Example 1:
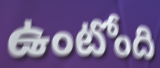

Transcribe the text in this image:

ఉంటోంది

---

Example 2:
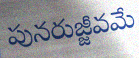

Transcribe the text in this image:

పునరుజ్జీవమే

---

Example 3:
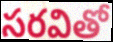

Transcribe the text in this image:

సరవితో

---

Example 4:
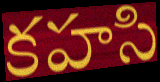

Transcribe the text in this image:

కహసి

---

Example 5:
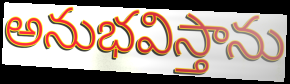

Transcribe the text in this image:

అనుభవిస్తాను